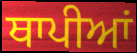
ਥਾਪੀਆਂ